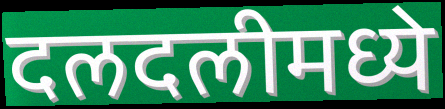
दलदलीमध्ये